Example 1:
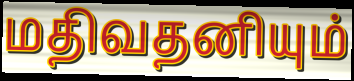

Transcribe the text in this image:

மதிவதனியும்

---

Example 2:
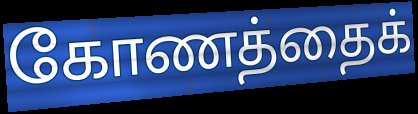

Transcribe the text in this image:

கோணத்தைக்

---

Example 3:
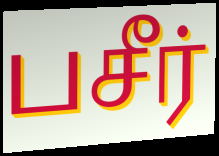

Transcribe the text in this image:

பசீர்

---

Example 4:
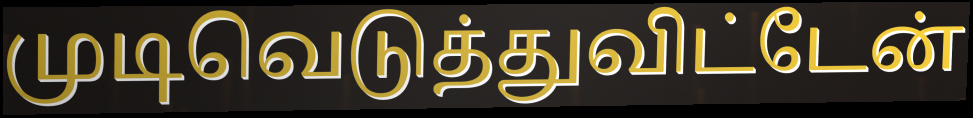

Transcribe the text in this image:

முடிவெடுத்துவிட்டேன்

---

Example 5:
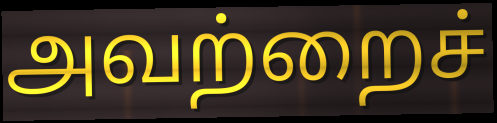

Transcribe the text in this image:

அவற்றைச்